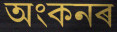
অংকনৰ